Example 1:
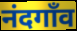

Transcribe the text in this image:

नंदगाँव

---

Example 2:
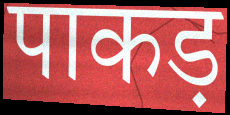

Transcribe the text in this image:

पाकड़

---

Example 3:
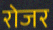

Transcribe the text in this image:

रोजर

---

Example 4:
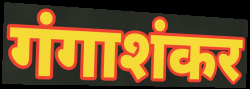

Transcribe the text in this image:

गंगाशंकर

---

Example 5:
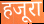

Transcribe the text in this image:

हजूरा